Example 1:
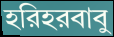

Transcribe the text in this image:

হরিহরবাবু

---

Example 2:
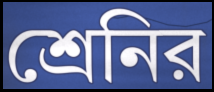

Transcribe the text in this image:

শ্রেনির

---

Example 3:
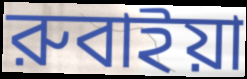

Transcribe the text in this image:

রুবাইয়া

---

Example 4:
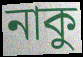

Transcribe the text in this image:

নাকু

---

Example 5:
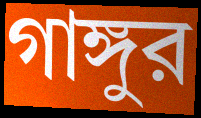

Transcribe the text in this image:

গাঙ্গুর